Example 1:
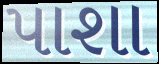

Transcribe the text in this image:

પાશા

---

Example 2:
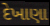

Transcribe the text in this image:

દેખાણા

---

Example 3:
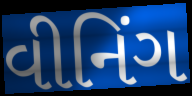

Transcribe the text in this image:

વીનિંગ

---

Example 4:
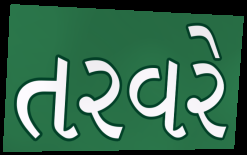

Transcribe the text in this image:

તરવરે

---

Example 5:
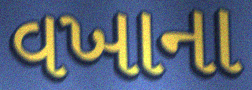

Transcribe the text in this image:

વખાના